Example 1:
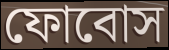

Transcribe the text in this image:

ফোবোস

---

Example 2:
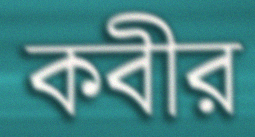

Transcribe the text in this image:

কবীর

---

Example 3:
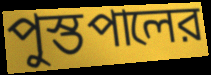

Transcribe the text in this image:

পুস্তপালের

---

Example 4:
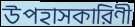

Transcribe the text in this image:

উপহাসকারিণী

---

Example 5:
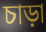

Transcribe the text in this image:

চাড়া